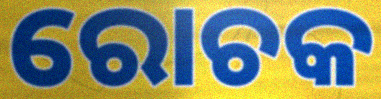
ରୋଚକ